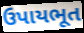
ઉપાયભૂત